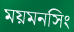
ময়মনসিং